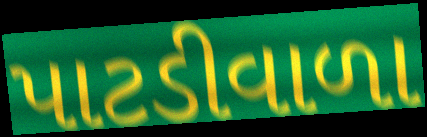
પાટડીવાળા